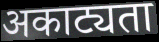
अकाट्यता